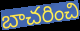
బాచరించి